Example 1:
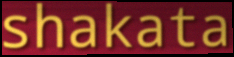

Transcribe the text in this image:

shakata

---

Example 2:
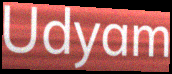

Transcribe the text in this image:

Udyam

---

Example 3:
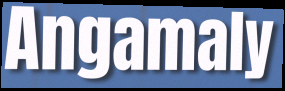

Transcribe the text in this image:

Angamaly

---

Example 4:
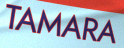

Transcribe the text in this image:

TAMARA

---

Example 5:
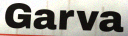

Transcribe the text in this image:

Garva